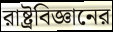
রাষ্ট্রবিজ্ঞানের